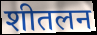
शीतलन